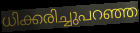
ധിക്കരിച്ചുപറഞ്ഞ